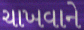
ચાખવાને